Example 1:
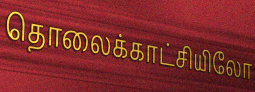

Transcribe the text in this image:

தொலைக்காட்சியிலோ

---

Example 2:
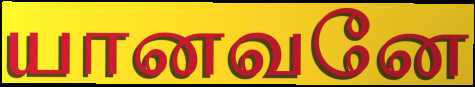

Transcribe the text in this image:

யானவனே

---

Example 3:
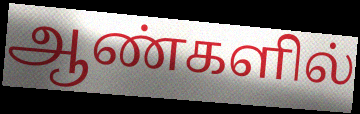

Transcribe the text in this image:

ஆண்களில்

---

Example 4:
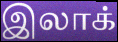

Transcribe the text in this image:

இலாக்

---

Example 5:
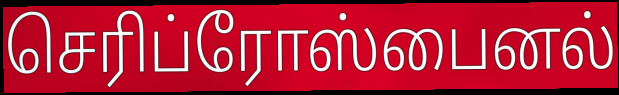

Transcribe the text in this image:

செரிப்ரோஸ்பைனல்